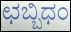
ಛಬ್ಬಿಧಂ